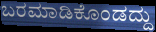
ಬರಮಾಡಿಕೊಂಡದ್ದು